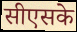
सीएसके